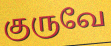
குருவே